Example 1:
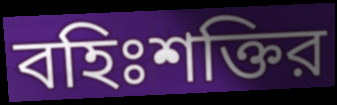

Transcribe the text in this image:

বহিঃশক্তির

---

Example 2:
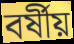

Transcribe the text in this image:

বর্ষীয়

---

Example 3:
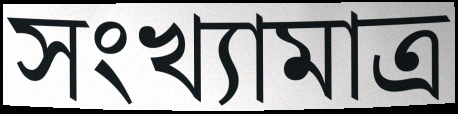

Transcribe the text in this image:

সংখ্যামাত্র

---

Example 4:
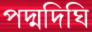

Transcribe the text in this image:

পদ্মদিঘি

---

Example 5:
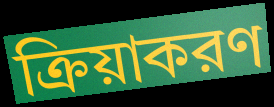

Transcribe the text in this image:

ক্রিয়াকরণ